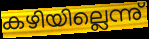
കഴിയില്ലെന്നു്